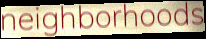
neighborhoods